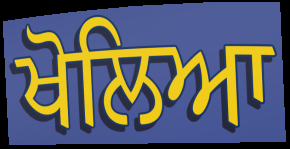
ਖੋਲਿਆ